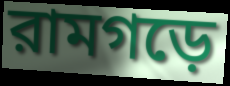
রামগড়ে